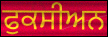
ਫੁਕਸੀਅਨ